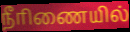
நீரிணையில்